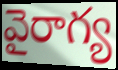
వైరాగ్య